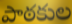
పాఠకుల